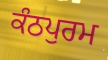
ਕੰਠਪੁਰਮ